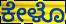
ಕೇಳೊ